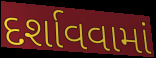
દર્શાવવામાં